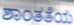
ಶಾಂತತೆಯ